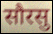
सौरसु